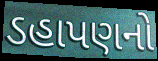
ડહાપણનો